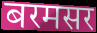
बरमसर